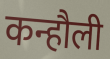
कन्हौली